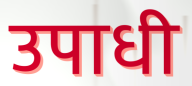
उपाधी